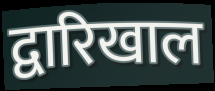
द्वारिखाल